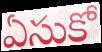
ఏసుకో